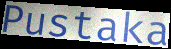
Pustaka